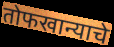
तोफखान्याचे